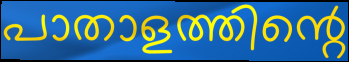
പാതാളത്തിന്റെ